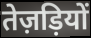
तेज़ड़ियों